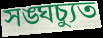
সঙ্ঘচ্যুত